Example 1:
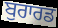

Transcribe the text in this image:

ਬੁਰਾਰਡ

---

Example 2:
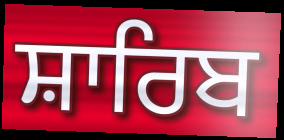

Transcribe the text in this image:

ਸ਼ਾਰਿਬ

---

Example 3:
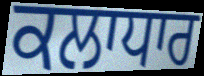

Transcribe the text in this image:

ਕਲਾਧਾਰ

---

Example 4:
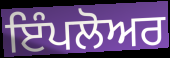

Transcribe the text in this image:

ਇੰਪਲੋਅਰ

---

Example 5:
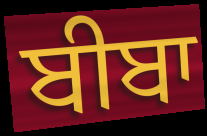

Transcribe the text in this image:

ਬੀਬਾ